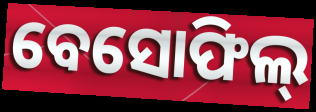
ବେସୋଫିଲ୍